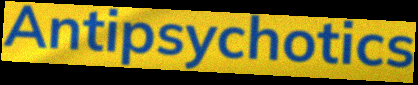
Antipsychotics